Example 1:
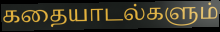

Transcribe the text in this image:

கதையாடல்களும்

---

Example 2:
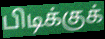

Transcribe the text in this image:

பிடிக்குக்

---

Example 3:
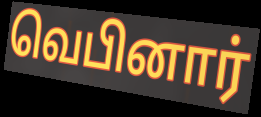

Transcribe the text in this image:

வெபினார்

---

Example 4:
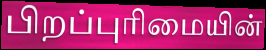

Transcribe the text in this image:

பிறப்புரிமையின்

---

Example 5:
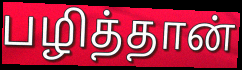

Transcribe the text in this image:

பழித்தான்